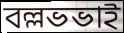
বল্লভভাই